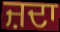
ਜ਼ਦਾ